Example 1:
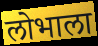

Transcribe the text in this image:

लोभाला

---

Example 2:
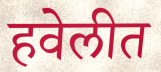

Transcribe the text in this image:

हवेलीत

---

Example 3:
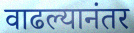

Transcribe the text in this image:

वाढल्यानंतर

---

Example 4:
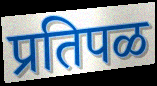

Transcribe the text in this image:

प्रतिपळ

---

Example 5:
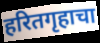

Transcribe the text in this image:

हरितगृहाचा